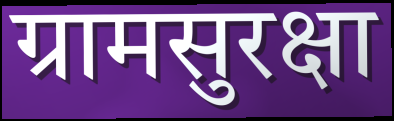
ग्रामसुरक्षा